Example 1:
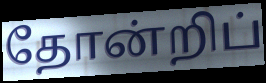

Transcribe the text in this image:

தோன்றிப்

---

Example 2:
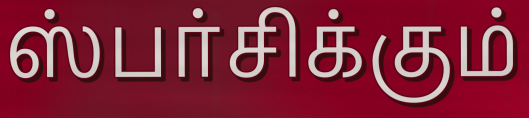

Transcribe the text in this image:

ஸ்பர்சிக்கும்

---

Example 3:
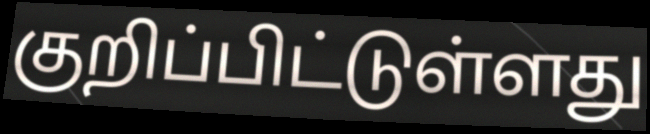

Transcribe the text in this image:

குறிப்பிட்டுள்ளது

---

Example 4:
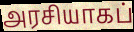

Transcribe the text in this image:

அரசியாகப்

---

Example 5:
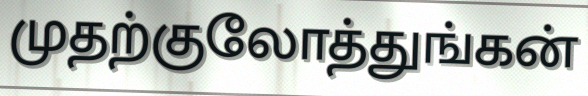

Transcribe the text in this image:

முதற்குலோத்துங்கன்